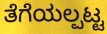
ತೆಗೆಯಲ್ಪಟ್ಟ